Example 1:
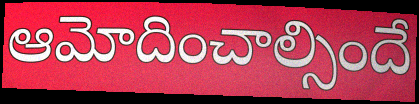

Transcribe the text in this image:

ఆమోదించాల్సిందే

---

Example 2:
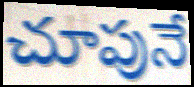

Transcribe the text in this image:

చూపునే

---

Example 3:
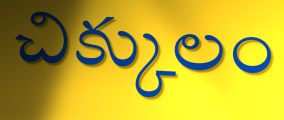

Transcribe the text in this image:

చిక్కులం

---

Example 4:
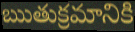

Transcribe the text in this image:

ఋతుక్రమానికి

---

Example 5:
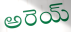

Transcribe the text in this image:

అరెయ్